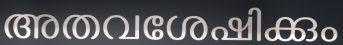
അതവശേഷിക്കും